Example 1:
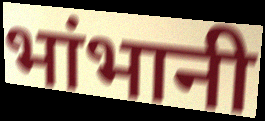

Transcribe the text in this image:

भांभानी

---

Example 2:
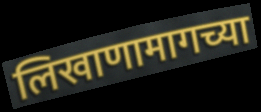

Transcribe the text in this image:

लिखाणामागच्या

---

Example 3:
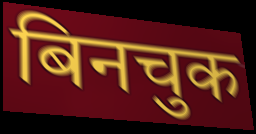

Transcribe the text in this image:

बिनचुक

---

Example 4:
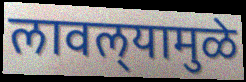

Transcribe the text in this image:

लावल्यामुळे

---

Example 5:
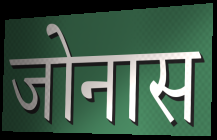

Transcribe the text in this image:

जोनास